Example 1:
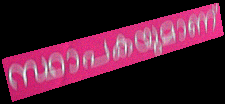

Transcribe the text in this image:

സ്ഥാപകയുമാണ്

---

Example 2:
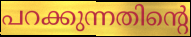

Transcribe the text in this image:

പറക്കുന്നതിന്റെ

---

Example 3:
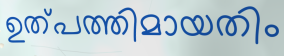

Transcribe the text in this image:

ഉത്പത്തിമായതിം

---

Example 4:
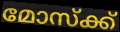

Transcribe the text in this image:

മോസ്ക്ക്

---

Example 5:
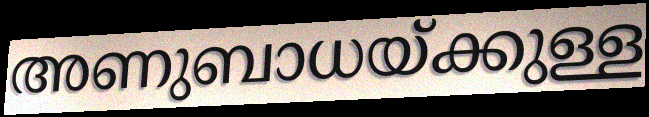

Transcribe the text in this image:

അണുബാധയ്ക്കുള്ള